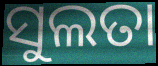
ସୁଲତା